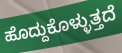
ಹೊದ್ದುಕೊಳ್ಳುತ್ತದೆ